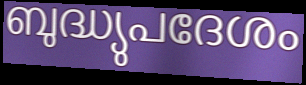
ബുദ്ധ്യുപദേശം